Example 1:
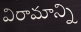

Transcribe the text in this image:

విరామాన్ని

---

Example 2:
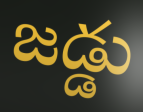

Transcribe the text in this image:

జడ్డు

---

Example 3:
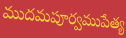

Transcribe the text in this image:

ముదమపూర్వముపేత్య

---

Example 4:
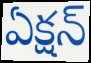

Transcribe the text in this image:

ఏక్షన్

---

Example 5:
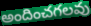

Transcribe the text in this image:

అందించగలవు